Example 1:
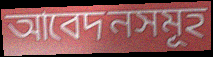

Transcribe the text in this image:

আবেদনসমূহ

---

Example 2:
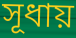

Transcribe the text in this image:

সূধায়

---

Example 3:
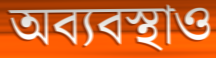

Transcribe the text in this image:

অব্যবস্থাও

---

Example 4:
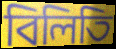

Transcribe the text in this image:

বিলিতি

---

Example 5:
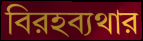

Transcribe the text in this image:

বিরহব্যথার